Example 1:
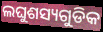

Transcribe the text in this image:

ଲଘୁଶସ୍ୟଗୁଡିକ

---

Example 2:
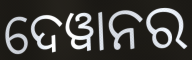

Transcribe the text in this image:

ଦେୱାନର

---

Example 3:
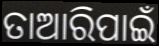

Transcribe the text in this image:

ତାଆରିପାଇଁ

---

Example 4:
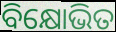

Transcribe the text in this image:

ବିକ୍ଷୋଭିତ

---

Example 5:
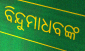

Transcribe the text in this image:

ବିନ୍ଦୁମାଧବଙ୍କ